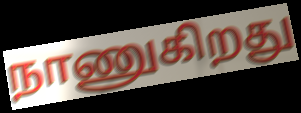
நாணுகிறது